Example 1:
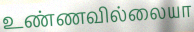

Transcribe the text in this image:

உண்ணவில்லையா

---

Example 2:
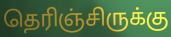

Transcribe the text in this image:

தெரிஞ்சிருக்கு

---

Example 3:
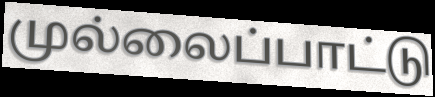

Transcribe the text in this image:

முல்லைப்பாட்டு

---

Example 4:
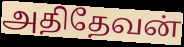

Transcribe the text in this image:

அதிதேவன்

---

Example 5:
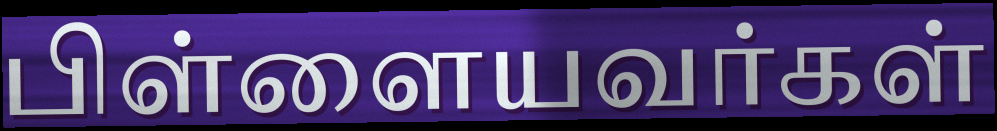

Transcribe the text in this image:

பிள்ளையவர்கள்